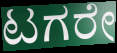
ಟಗರೇ